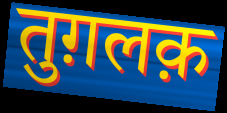
तुग़लक़